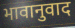
भावानुवाद